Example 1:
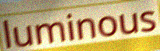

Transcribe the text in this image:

luminous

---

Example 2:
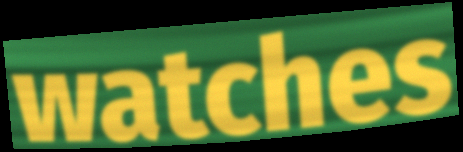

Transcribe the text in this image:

watches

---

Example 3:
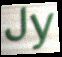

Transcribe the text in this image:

Jy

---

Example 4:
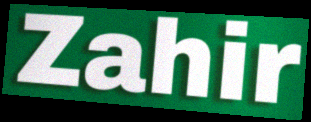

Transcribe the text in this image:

Zahir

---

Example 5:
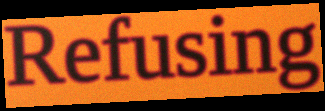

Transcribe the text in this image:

Refusing